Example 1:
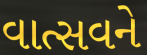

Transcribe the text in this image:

વાત્સવને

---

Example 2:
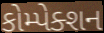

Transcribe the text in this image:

કોમ્પેક્શન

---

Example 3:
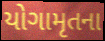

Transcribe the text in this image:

યોગામૃતના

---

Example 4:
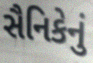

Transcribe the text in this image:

સૈનિકેનું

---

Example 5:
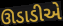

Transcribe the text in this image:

ઊડાડીએ